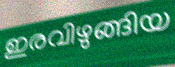
ഇരവിഴുങ്ങിയ